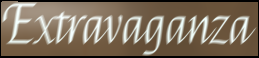
Extravaganza